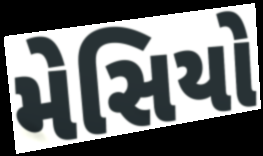
મેસિયો